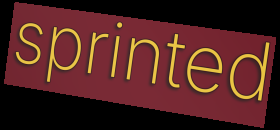
sprinted